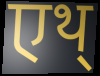
एथ्